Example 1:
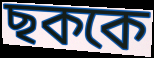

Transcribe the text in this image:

ছককে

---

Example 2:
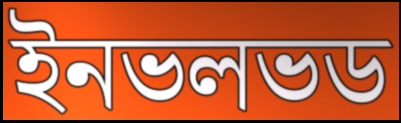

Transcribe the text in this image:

ইনভলভড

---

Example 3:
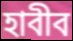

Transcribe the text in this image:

হাবীব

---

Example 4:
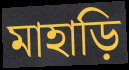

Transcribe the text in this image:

মাহাড়ি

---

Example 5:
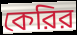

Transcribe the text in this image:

কেরির